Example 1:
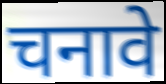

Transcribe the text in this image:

चनावे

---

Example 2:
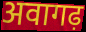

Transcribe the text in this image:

अवागढ़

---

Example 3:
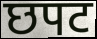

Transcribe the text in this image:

छपट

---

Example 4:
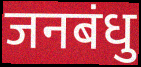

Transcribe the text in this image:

जनबंधु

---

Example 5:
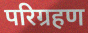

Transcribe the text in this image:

परिग्रहण